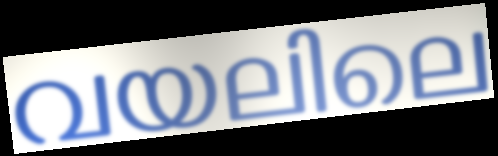
വയലിലെ